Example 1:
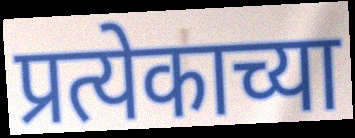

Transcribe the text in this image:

प्रत्येकाच्या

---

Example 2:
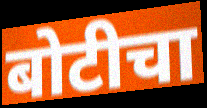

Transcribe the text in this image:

बोटीचा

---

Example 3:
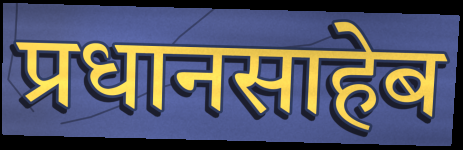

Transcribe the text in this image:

प्रधानसाहेब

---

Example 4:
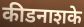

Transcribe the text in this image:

कीडनाशके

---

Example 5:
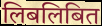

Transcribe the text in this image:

लिबलिबित